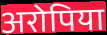
अरोपिया